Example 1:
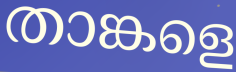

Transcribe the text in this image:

താങ്കളെ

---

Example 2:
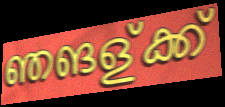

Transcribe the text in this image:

ഞങള്ക്ക്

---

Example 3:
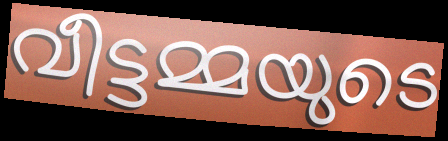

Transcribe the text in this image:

വീട്ടമ്മയുടെ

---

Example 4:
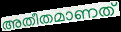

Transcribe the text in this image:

അതീതമാണത്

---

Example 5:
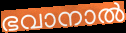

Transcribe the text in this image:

ഭവാനാൽ